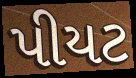
પીયટ